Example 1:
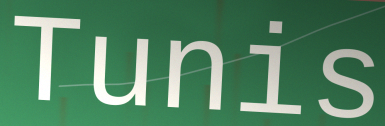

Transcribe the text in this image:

Tunis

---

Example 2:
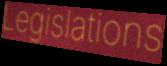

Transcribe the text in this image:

Legislations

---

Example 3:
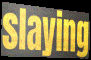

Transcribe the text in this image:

slaying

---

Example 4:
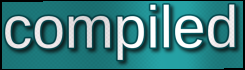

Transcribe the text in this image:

compiled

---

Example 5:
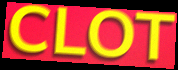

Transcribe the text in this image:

CLOT